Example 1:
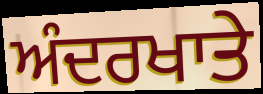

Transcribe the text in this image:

ਅੰਦਰਖਾਤੇ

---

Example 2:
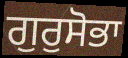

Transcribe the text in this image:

ਗੁਰੁਸੋਭਾ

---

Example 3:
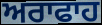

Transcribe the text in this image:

ਅਰਾਫਾਹ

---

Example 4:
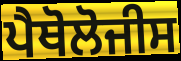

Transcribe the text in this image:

ਪੈਥੋਲੋਜੀਸ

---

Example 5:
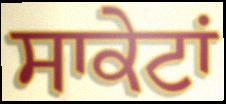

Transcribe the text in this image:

ਸਾਕੇਟਾਂ